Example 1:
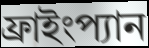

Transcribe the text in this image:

ফ্রাইংপ্যান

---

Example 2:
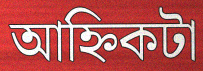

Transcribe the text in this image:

আহ্নিকটা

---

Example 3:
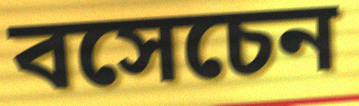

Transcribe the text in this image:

বসেচেন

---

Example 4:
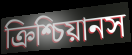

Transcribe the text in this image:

ক্রিশ্চিয়ানস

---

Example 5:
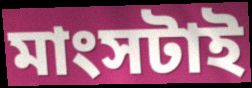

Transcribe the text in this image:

মাংসটাই